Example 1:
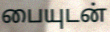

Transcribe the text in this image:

பையுடன்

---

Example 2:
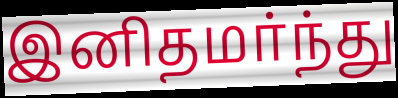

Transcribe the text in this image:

இனிதமர்ந்து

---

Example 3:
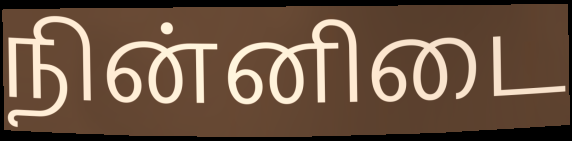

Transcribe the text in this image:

நின்னிடை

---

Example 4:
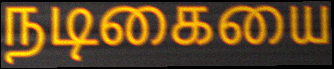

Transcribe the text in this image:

நடிகையை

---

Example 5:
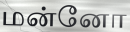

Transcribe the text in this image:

மன்னோ